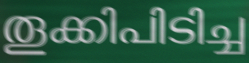
തൂക്കിപിടിച്ച